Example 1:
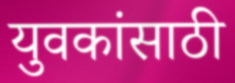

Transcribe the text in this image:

युवकांसाठी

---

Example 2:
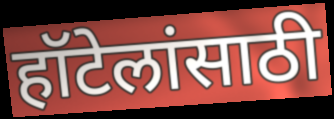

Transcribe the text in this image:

हॉटेलांसाठी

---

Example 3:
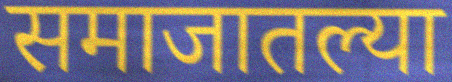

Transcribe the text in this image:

समाजातल्‍या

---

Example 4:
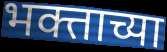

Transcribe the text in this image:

भक्ताच्या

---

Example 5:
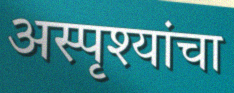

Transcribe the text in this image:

अस्पृश्यांचा